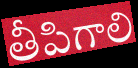
తీపిగాలి